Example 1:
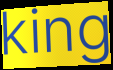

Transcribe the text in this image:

king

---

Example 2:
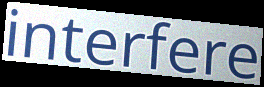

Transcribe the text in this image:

interfere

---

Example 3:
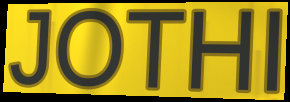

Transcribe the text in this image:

JOTHI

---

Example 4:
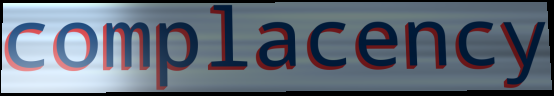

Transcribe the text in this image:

complacency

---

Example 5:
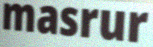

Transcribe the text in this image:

masrur